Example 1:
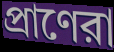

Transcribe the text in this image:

প্রাণেরা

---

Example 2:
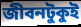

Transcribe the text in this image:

জীবনটুকুই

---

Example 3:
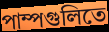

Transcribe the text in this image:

পাম্পগুলিতে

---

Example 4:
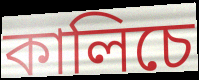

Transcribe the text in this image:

কালিচে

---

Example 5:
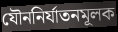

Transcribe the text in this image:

যৌননির্যাতনমূলক